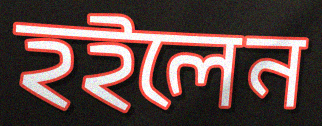
হইলেন